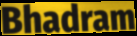
Bhadram